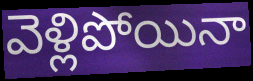
వెళ్లిపోయినా